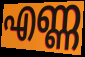
എണ്ണ